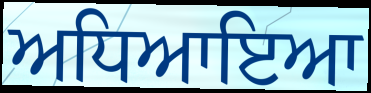
ਅਧਿਆਇਆ